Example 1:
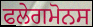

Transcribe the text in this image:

ਫਲੇਗਮੋਨਸ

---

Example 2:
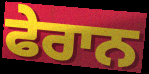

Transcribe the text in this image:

ਫੇਰਾਨ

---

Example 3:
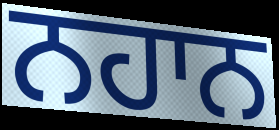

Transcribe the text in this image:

ਨਹਾਨ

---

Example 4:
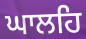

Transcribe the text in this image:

ਘਾਲਹਿ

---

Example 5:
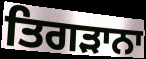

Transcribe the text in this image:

ਤਿਗੜਾਨਾ